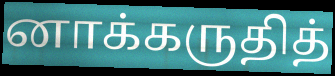
னாக்கருதித்